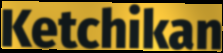
Ketchikan